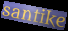
santike